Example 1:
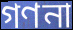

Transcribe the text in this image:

গণনা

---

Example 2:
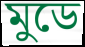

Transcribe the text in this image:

মুডে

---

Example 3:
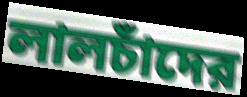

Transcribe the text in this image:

লালচাঁদের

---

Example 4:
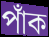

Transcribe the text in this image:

পাঁক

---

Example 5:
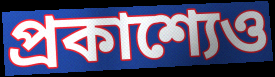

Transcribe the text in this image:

প্রকাশ্যেও